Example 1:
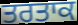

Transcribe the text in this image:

ਤਰਤਾਕ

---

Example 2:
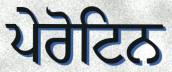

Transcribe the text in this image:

ਪੇਰੋਟਿਨ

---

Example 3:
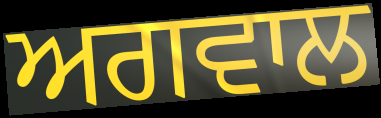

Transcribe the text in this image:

ਅਗਵਾਲ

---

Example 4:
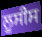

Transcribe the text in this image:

ਲੂਸੀਸ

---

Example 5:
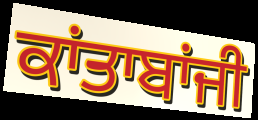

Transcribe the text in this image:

ਕਾਂਤਾਬਾਂਜੀ